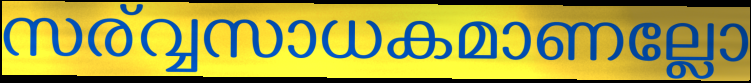
സര്വ്വസാധകമാണല്ലോ